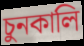
চুনকালি